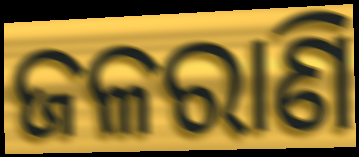
ଜଳରାଣି